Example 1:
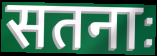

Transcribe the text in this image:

सतनाः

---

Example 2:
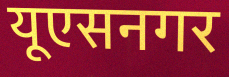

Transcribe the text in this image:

यूएसनगर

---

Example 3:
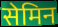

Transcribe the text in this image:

सेमिन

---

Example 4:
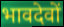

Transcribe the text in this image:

भावदेवों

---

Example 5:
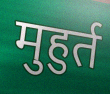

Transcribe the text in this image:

मुहुर्त